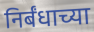
निर्बंधाच्या